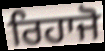
ਰਿਹਾਜੋ